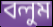
বলুম